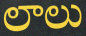
లాలు